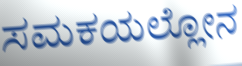
ಸಮಕಯಲ್ಲೋನ